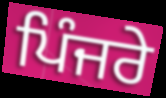
ਪਿੰਜਰੇ